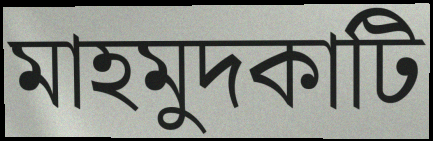
মাহমুদকাটি